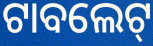
ଟାବଲେଟ୍